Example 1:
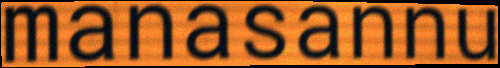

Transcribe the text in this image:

manasannu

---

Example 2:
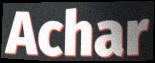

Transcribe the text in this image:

Achar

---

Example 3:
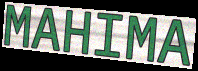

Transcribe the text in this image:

MAHIMA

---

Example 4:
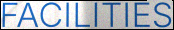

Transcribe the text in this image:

FACILITIES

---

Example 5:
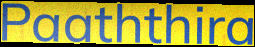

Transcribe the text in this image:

Paaththira